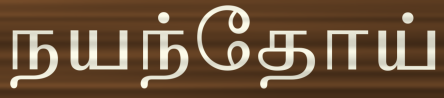
நயந்தோய்